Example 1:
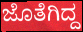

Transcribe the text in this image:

ಜೊತೆಗಿದ್ದ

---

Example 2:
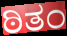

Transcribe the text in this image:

ಠಿತಂ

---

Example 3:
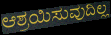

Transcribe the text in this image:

ಆಶ್ರಯಿಸುವುದಿಲ್ಲ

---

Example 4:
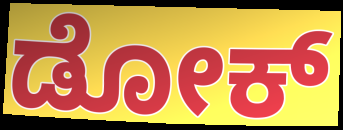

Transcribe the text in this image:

ಡೋಕ್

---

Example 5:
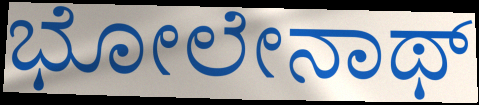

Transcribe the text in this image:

ಭೋಲೇನಾಥ್